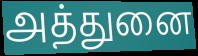
அத்துனை